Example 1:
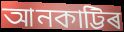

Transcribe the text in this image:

আনকাট্টিৰ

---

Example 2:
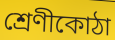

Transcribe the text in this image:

শ্ৰেণীকোঠা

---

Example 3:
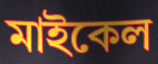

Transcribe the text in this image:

মাইকেল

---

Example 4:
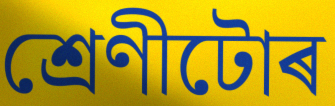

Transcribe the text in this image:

শ্ৰেণীটোৰ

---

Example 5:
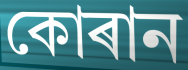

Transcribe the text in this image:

কোৰান